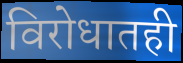
विरोधातही